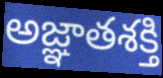
అజ్ఞాతశక్తి